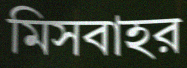
মিসবাহর